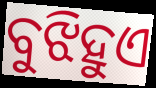
ବୁଝିହୁଏ